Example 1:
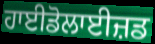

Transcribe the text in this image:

ਹਾਈਡੋਲਾਈਜ਼ਡ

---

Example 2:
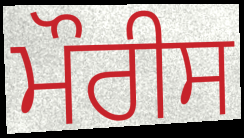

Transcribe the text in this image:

ਮੌਰੀਸ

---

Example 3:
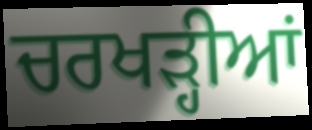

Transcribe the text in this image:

ਚਰਖੜ੍ਹੀਆਂ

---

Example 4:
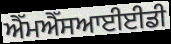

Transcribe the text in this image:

ਐੱਮਐੱਸਆਈਈਡੀ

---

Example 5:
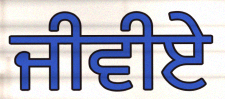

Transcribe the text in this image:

ਜੀਵੀਏ